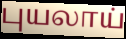
புயலாய்